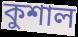
কুশাল